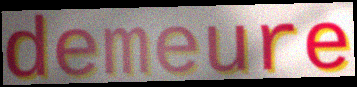
demeure